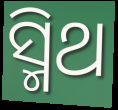
ସ୍ମିଥ